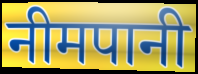
नीमपानी